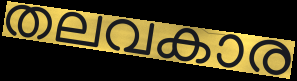
തലവകാര